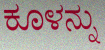
ಕೂಳನ್ನು